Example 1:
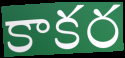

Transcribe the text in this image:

కాకర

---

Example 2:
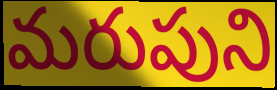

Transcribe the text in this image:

మరుపుని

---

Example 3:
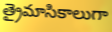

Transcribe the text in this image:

త్రైమాసికాలుగా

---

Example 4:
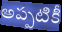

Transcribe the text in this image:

అప్పటికీ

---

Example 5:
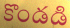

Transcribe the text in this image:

కొండడి